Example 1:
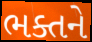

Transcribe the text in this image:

ભક્તને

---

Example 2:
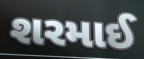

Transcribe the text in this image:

શરમાઈ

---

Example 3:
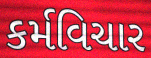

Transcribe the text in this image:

કર્મવિચાર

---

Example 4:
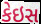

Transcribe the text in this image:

કેઇસ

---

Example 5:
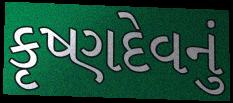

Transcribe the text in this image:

કૃષ્ણદેવનું